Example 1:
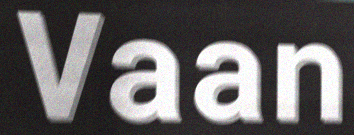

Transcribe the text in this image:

Vaan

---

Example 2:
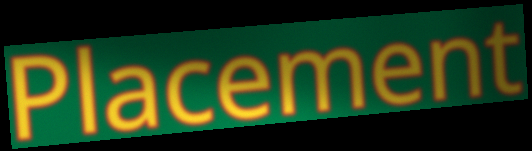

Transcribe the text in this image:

Placement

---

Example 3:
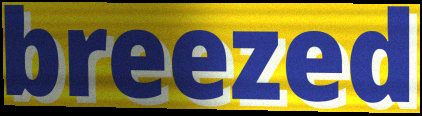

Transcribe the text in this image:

breezed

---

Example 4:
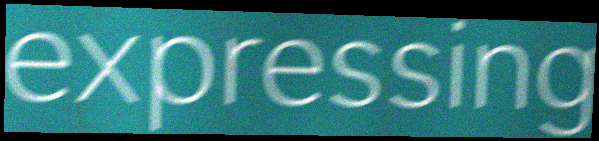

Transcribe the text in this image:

expressing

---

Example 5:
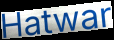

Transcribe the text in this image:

Hatwar